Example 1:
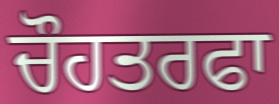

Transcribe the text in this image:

ਚੌਹਤਰਫਾ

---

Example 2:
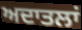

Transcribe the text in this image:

ਅਦਾਤਲਾਂ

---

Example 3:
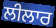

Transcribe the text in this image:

ਲੀਲਾਰ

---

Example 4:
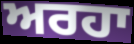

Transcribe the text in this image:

ਅਰਹਾ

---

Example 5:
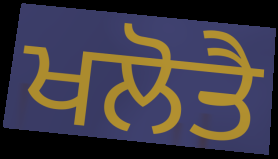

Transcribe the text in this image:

ਖਲੋਤੈ